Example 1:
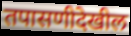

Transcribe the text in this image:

तपासणीदेखील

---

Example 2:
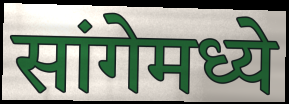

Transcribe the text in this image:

सांगेमध्ये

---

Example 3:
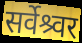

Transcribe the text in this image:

सर्वेश्र्वर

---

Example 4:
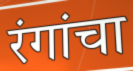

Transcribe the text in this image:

रंगांचा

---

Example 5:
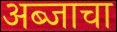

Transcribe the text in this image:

अब्जाचा